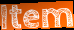
Item